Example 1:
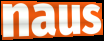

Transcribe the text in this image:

naus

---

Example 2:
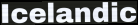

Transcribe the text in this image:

Icelandic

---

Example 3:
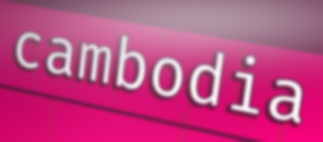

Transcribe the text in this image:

cambodia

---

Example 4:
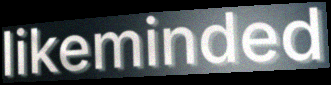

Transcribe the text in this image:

likeminded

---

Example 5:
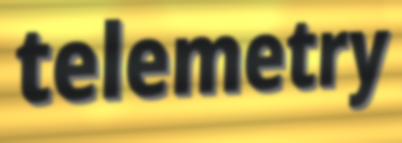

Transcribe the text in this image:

telemetry